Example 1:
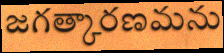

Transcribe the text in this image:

జగత్కారణమను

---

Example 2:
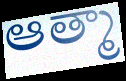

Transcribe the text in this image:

ఆత్మా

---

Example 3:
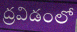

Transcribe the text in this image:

ద్రవిడంలో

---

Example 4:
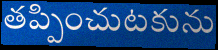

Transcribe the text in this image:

తప్పించుటకును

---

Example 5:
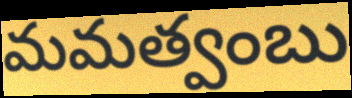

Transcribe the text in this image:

మమత్వంబు